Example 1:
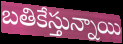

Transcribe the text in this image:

బతికేస్తున్నాయి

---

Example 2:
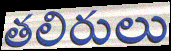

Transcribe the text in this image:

తలిరులు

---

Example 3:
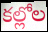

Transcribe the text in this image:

కల్లోల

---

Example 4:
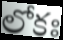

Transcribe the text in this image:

లోకః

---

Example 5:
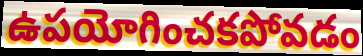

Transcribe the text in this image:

ఉపయోగించకపోవడం